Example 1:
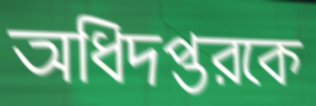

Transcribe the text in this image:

অধিদপ্তরকে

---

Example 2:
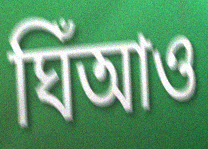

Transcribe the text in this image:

ঘিঁআও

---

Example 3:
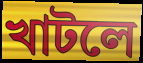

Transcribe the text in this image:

খাটলে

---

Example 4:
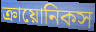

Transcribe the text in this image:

ক্রায়োনিকস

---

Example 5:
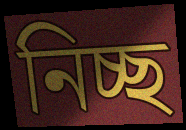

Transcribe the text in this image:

নিচ্ছ